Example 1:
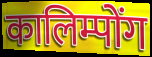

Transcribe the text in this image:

कालिम्पोंग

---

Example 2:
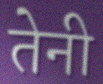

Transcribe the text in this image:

तेनी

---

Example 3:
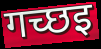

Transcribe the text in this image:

गच्छइ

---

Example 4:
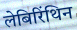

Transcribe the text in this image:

लेबिरिंथिन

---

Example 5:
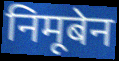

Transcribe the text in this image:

निमूबेन